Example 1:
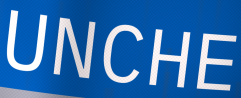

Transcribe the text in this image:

UNCHE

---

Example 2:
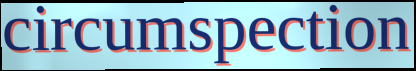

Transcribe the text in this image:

circumspection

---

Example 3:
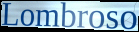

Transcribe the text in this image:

Lombroso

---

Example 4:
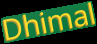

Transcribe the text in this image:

Dhimal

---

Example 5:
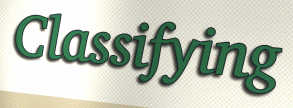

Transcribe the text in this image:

Classifying